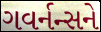
ગવર્નન્સને